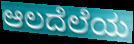
ಆಲದೆಲೆಯ